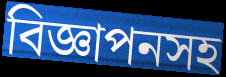
বিজ্ঞাপনসহ